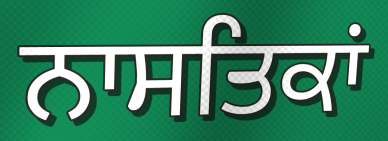
ਨਾਸਤਿਕਾਂ